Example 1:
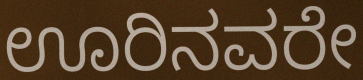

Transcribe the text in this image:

ಊರಿನವರೇ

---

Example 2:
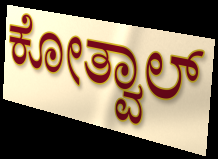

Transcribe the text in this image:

ಕೋತ್ವಾಲ್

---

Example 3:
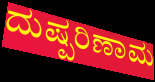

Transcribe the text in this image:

ದುಷ್ಪರಿಣಾಮ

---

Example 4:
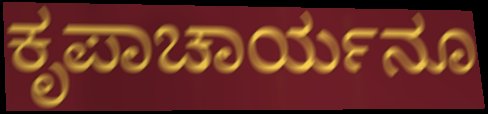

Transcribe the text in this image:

ಕೃಪಾಚಾರ್ಯನೂ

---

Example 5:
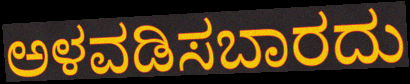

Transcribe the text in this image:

ಅಳವಡಿಸಬಾರದು